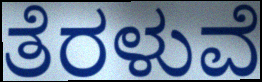
ತೆರಳುವೆ